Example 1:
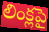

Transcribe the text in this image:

లింక్లపై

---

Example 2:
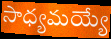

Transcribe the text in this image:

సాధ్యమయ్యే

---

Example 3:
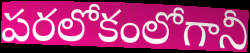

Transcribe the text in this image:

పరలోకంలోగానీ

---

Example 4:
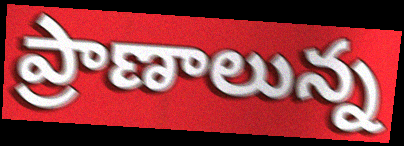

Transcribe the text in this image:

ప్రాణాలున్న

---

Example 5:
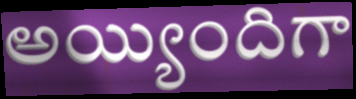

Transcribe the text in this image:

అయ్యిందిగా